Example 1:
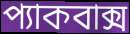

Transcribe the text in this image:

প্যাকবাক্স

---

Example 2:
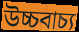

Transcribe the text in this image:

উচ্চবাচ্য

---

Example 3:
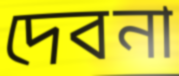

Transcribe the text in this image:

দেবনা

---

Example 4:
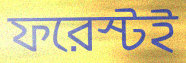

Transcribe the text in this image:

ফরেস্টই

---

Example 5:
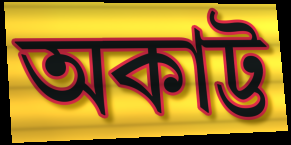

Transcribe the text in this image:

অকাট্ট